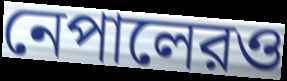
নেপালেরও